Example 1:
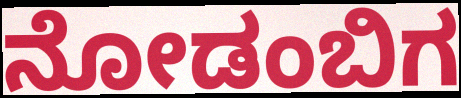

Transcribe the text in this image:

ನೋಡಂಬಿಗ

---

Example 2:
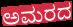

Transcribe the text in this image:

ಅಮರದ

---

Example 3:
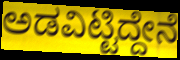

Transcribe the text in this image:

ಅಡವಿಟ್ಟಿದ್ದೇನೆ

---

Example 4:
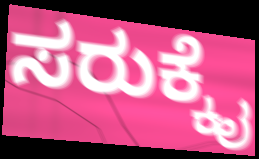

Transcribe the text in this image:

ಸರುಕ್ಕೈ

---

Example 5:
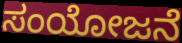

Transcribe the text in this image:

ಸಂಯೋಜನೆ